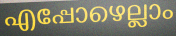
എപ്പോഴെല്ലാം